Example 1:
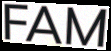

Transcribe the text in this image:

FAM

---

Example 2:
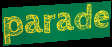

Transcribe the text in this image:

parade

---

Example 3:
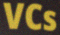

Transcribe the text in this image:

VCs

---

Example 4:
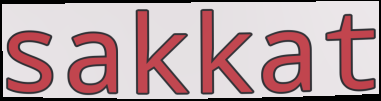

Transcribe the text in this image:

sakkat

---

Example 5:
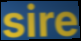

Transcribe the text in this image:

sire